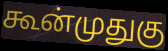
கூன்முதுகு